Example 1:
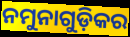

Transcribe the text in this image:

ନମୁନାଗୁଡ଼ିକର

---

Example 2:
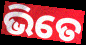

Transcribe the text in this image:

ଭିତେ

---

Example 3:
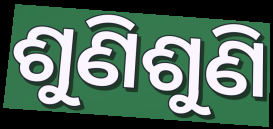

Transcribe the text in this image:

ଶୁଣିଶୁଣି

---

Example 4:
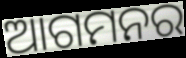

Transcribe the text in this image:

ଆଗମନର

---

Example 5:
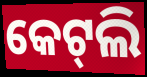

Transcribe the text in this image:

କେଟ୍‍ଲି